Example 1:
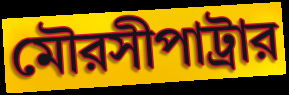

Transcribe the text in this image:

মৌরসীপাট্রার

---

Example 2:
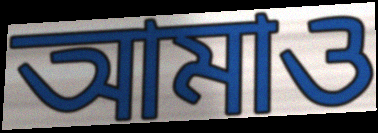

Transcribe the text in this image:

আমাও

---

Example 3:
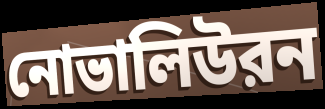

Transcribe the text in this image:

নোভালিউরন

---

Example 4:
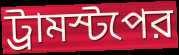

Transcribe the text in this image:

ট্রামস্টপের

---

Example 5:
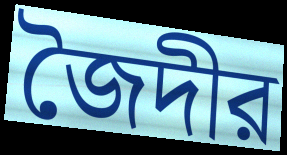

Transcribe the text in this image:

জৈদীর